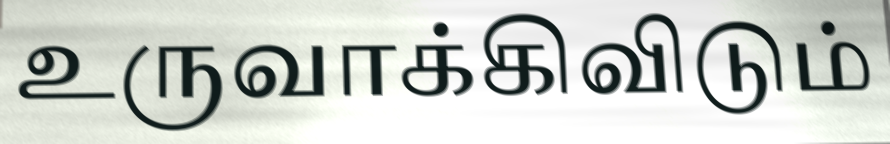
உருவாக்கிவிடும்